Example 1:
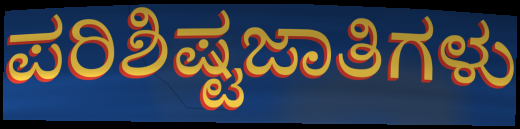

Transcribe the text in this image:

ಪರಿಶಿಷ್ಟಜಾತಿಗಳು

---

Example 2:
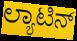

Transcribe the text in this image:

ಲ್ಯಾಟಿನ್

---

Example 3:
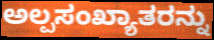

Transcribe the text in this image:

ಅಲ್ಪಸಂಖ್ಯಾತರನ್ನು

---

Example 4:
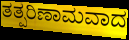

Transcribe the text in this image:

ತತ್ಪರಿಣಾಮವಾದ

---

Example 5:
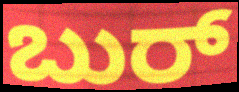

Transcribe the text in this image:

ಬುರ್